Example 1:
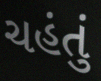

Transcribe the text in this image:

ચહંતું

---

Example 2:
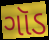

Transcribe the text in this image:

ગૉડ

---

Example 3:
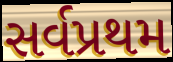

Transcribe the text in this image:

સર્વપ્રથમ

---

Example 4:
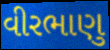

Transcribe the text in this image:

વીરભાણુ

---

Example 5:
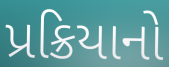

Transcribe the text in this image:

પ્રક્રિયાનો